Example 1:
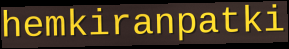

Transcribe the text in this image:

hemkiranpatki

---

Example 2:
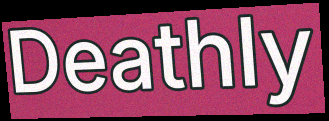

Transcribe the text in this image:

Deathly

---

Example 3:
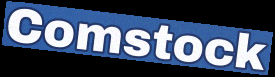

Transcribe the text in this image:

Comstock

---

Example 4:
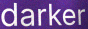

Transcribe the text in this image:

darker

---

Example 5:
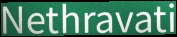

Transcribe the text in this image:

Nethravati